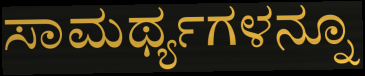
ಸಾಮರ್ಥ್ಯಗಳನ್ನೂ